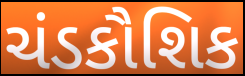
ચંડકૌશિક